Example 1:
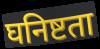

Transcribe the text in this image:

घनिष्टता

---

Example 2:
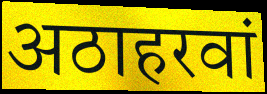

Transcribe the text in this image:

अठाहरवां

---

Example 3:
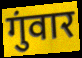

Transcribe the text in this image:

गुंवार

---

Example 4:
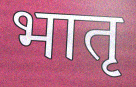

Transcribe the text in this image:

भातृ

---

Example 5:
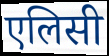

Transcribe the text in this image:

एलिसी